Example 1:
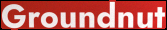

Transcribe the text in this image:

Groundnut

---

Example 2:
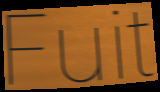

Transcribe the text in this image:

Fuit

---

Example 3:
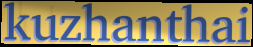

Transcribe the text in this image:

kuzhanthai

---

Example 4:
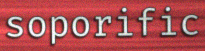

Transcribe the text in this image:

soporific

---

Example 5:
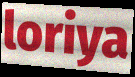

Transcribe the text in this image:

loriya